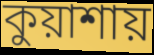
কুয়াশায়